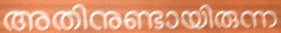
അതിനുണ്ടായിരുന്ന